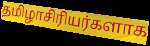
தமிழாசிரியர்களாக